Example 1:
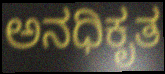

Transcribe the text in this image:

ಅನಧಿಕೃತ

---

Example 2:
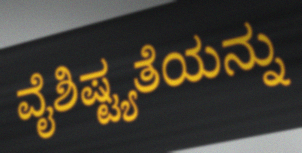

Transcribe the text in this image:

ವೈಶಿಷ್ಟ್ಯತೆಯನ್ನು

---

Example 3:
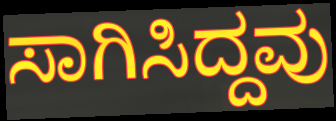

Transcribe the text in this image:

ಸಾಗಿಸಿದ್ದವು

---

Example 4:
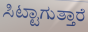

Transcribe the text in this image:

ಸಿಟ್ಟಾಗುತ್ತಾರೆ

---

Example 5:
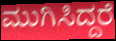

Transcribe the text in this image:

ಮುಗಿಸಿದ್ದರೆ